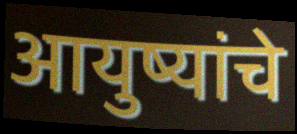
आयुष्यांचे